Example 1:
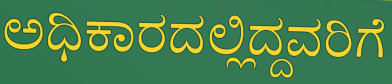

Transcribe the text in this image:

ಅಧಿಕಾರದಲ್ಲಿದ್ದವರಿಗೆ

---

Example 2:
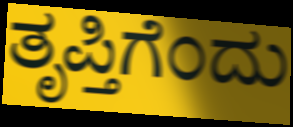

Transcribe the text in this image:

ತೃಪ್ತಿಗೆಂದು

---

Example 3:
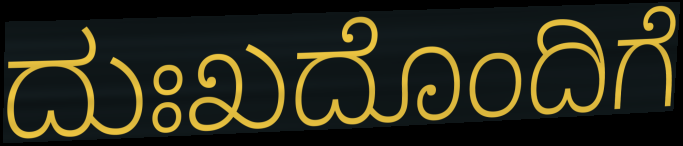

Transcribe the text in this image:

ದುಃಖದೊಂದಿಗೆ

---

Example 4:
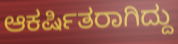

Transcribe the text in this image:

ಆಕರ್ಷಿತರಾಗಿದ್ದು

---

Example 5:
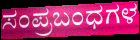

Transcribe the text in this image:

ಸಂಪ್ರಬಂಧಗಳ